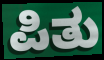
ಪಿತು